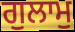
ਗੁਲਾਮੁ